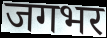
जगभर